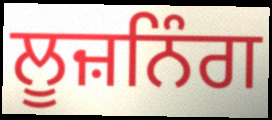
ਲੂਜ਼ਨਿੰਗ